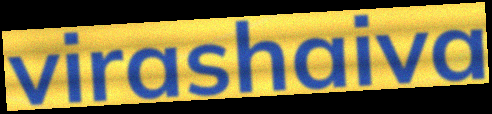
virashaiva